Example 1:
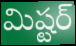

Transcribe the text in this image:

మిష్టర్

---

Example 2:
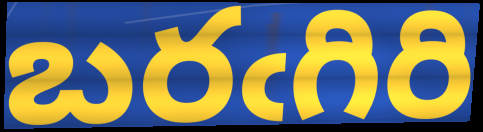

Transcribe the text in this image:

బరఁగిరి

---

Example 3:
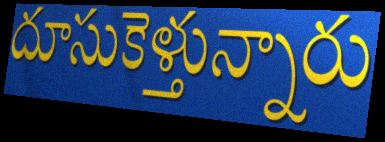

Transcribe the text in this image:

దూసుకెళ్తున్నారు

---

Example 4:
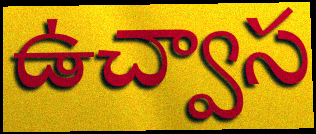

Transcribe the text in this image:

ఉచ్వాస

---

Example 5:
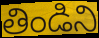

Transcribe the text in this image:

తిండిని